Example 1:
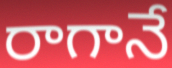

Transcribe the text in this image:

రాగానే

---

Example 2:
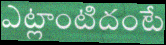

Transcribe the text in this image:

ఎట్లాంటిదంటే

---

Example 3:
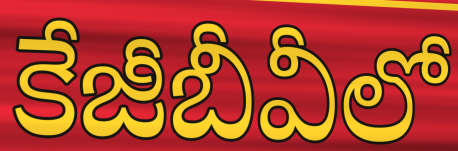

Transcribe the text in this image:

కేజీబీవీలో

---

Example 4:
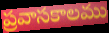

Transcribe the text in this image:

ప్రవాసకాలము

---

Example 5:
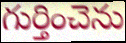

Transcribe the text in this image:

గుర్తించెను